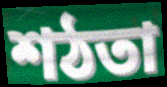
শঠতা